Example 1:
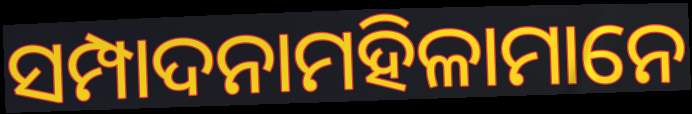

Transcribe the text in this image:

ସମ୍ପାଦନାମହିଳାମାନେ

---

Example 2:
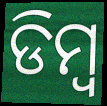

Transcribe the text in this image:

ଡିମ୍ଵ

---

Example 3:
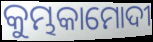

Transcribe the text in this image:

କୁମ୍ଭକାମୋଦୀ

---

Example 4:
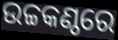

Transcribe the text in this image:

ଉଚ୍ଚକଣ୍ଠରେ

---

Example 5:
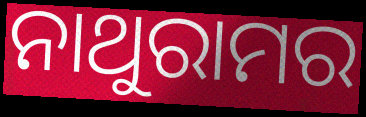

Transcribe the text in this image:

ନାଥୁରାମର